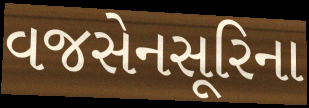
વજસેનસૂરિના